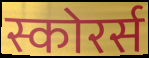
स्कोरर्स